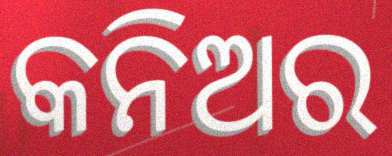
କନିଅର